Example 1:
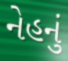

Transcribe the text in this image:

નેહનું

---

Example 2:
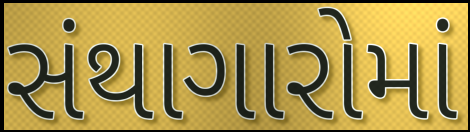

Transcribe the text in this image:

સંથાગારોમાં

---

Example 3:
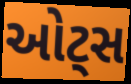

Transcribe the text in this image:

ઓટ્સ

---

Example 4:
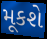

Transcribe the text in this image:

મૂકશે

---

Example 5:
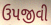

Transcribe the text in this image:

ઉપજીવી